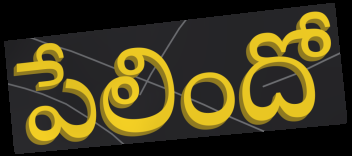
పేలిందో